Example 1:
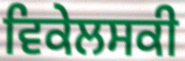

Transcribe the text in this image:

ਵਿਕੇਲਸਕੀ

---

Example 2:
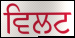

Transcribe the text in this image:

ਵਿਲਟ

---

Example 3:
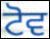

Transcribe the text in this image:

ਟੋਵ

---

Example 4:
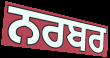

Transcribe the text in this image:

ਨਰਬਰ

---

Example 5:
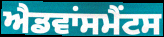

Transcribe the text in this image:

ਐਡਵਾਂਸਮੈਂਟਸ